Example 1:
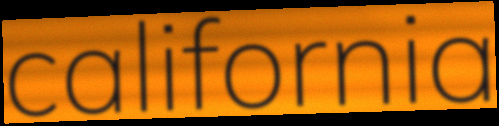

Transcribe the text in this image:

california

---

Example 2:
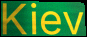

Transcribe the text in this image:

Kiev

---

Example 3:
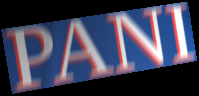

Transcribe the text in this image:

PANI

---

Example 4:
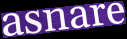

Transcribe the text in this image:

asnare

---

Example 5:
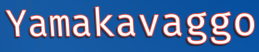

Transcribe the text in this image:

Yamakavaggo